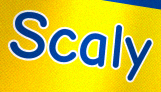
Scaly